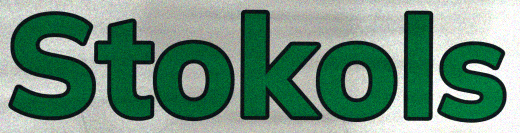
Stokols